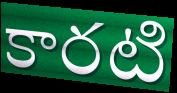
కారటి